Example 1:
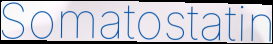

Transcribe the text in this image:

Somatostatin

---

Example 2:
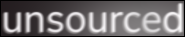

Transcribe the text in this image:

unsourced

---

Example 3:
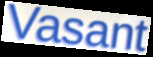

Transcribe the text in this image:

Vasant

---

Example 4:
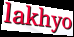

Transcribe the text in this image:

lakhyo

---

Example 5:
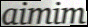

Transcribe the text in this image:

aimim